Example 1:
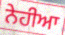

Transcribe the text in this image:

ਨੇਹੀਆ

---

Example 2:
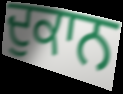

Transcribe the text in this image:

ਦੁਕਾਨ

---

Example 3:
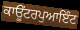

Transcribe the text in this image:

ਕਾਊਂਟਰਪੁਆਇੰਟ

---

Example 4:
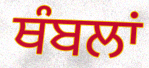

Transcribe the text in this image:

ਥੰਬਲਾਂ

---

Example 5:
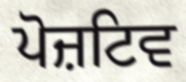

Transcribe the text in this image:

ਪੋਜ਼ਟਿਵ